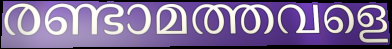
രണ്ടാമത്തവളെ